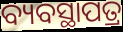
ବ୍ୟବସ୍ଥାପତ୍ର